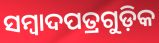
ସମ୍ୱାଦପତ୍ରଗୁଡ଼ିକ